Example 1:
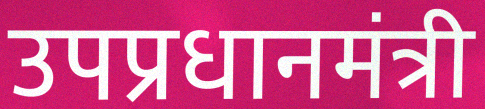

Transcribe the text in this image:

उपप्रधानमंत्री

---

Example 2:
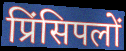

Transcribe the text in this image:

प्रिंसिपलों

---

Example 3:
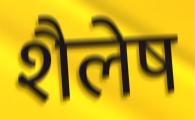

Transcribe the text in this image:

शैलेष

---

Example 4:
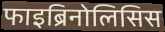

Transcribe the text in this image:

फाइब्रिनोलिसिस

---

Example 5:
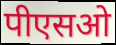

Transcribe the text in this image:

पीएसओ